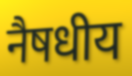
नैषधीय